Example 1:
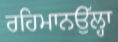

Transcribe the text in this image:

ਰਹਿਮਾਨਉੱਲ੍ਹਾ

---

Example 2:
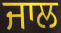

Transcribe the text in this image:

ਜਾਲ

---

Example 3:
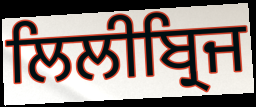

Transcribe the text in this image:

ਲਿਲੀਬ੍ਰਿਜ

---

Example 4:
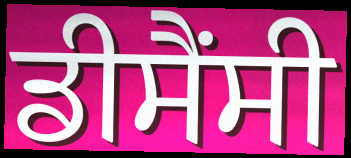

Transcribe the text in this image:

ਡੀਸੈਂਸੀ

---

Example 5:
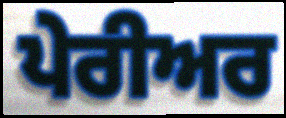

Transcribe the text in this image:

ਪੇਰੀਅਰ